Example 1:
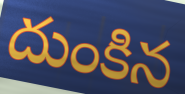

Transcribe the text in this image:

దుంకిన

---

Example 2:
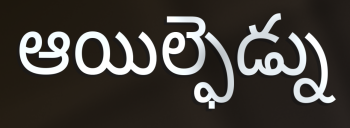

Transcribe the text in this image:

ఆయిల్ఫెడ్ను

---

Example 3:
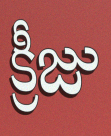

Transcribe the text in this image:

క్రీజు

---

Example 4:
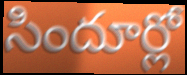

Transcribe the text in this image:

సిందూర్లో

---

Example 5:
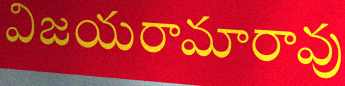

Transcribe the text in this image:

విజయరామారావు